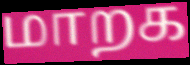
மாறக